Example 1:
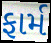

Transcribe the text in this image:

ફાર્મ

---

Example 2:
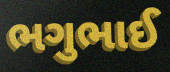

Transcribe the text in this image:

ભગુભાઈ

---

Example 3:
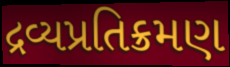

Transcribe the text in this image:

દ્રવ્યપ્રતિક્રમણ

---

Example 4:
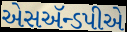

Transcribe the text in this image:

એસઍન્ડપીએ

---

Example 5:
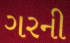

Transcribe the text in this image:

ગરની